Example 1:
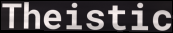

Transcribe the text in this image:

Theistic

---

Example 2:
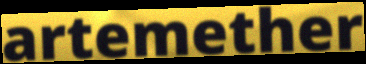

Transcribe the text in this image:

artemether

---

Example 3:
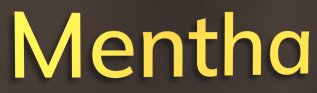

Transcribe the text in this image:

Mentha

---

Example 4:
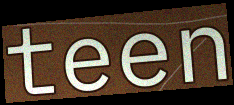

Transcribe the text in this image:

teen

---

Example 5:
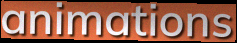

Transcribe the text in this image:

animations